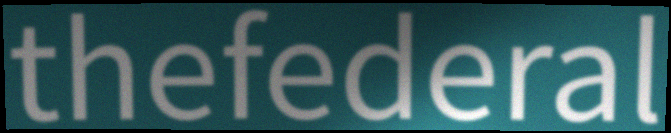
thefederal